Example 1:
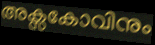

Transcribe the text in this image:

അക്സകോവിനും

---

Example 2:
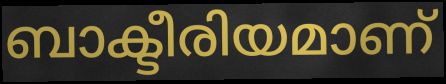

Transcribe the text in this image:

ബാക്ടീരിയമാണ്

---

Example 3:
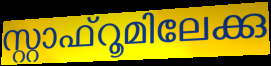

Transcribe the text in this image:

സ്റ്റാഫ്റൂമിലേക്കു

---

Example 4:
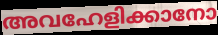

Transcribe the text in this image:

അവഹേളിക്കാനോ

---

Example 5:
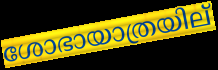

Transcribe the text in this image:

ശോഭായാത്രയില്